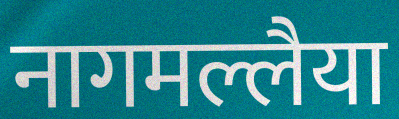
नागमल्लैया